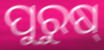
ପୁରୁଷ୍